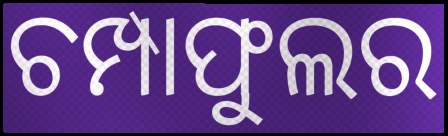
ଚମ୍ପାଫୁଲର